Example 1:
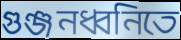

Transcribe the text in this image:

গুঞ্জনধ্বনিতে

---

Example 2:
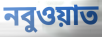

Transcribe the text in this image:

নবুওয়াত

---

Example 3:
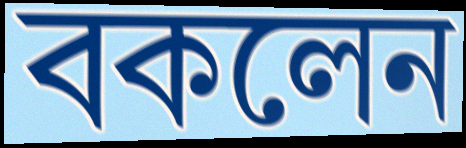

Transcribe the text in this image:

বকলেন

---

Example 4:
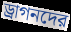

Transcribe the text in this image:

ড্রাগনদের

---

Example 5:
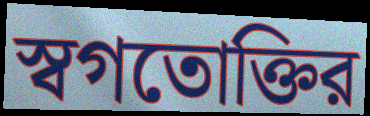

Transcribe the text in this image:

স্বগতোক্তির